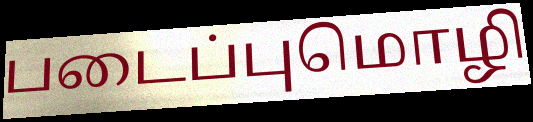
படைப்புமொழி